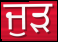
ਜੁੜ